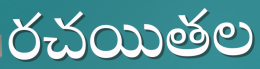
రచయితల